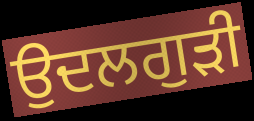
ਉਦਲਗੁੜੀ